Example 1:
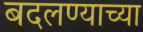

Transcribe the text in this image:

बदलण्याच्या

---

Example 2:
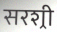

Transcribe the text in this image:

सरश्री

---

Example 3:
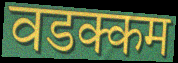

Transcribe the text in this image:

वडक्कम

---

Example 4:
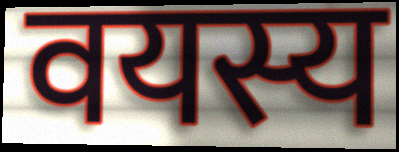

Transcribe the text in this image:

वयस्य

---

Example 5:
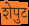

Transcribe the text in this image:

शेपुट